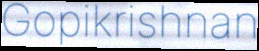
Gopikrishnan